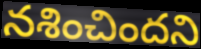
నశించిందని